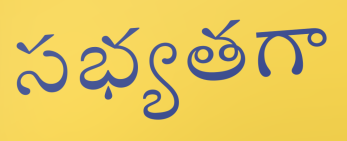
సభ్యతగా